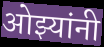
ओझ्यांनी